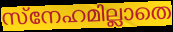
സ്‌നേഹമില്ലാതെ